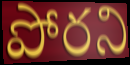
పోరని